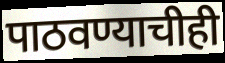
पाठवण्याचीही